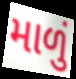
માળું